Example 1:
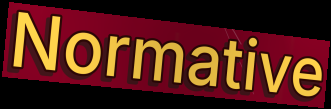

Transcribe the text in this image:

Normative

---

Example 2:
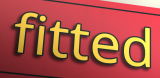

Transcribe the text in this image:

fitted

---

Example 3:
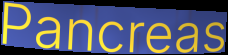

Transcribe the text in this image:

Pancreas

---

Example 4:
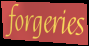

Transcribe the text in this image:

forgeries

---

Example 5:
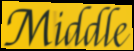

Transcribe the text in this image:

Middle